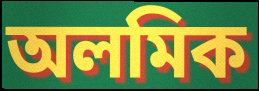
অলমিক